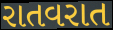
રાતવરાત